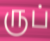
ருப்